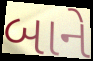
બાને